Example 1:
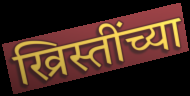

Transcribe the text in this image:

ख्रिस्तींच्या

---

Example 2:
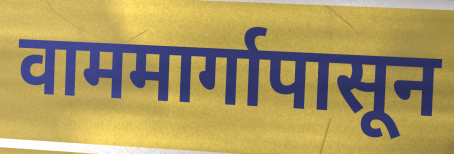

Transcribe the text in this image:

वाममार्गापासून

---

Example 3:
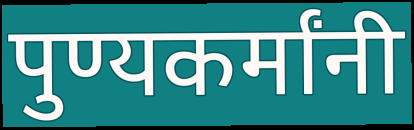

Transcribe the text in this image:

पुण्यकर्मांनी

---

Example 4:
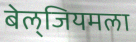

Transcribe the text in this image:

बेल्जियमला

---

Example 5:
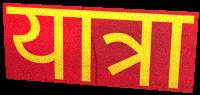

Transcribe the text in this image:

यात्रा